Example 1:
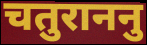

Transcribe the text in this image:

चतुराननु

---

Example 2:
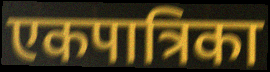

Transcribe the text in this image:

एकपात्रिका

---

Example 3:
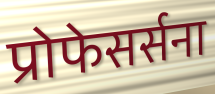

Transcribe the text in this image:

प्रोफेसर्सना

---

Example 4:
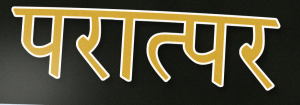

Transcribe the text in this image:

परात्पर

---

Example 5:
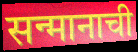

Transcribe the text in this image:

सन्मानाची